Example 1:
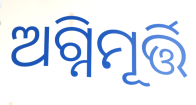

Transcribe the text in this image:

ଅଗ୍ନିମୂର୍ତ୍ତି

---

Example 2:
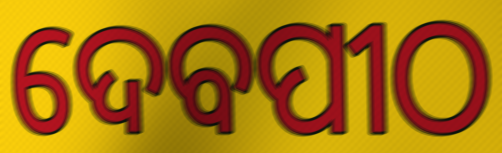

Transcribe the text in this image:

ଦେବପୀଠ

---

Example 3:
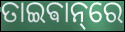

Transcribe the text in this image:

ତାଇଵାନ୍‌ରେ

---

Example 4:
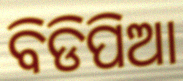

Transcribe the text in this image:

ବିଡିପିଆ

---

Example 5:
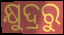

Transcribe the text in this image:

କ୍ଷୁଦ୍ରରୁ